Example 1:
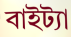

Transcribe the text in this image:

বাইট্যা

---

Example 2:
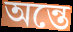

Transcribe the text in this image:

অন্তে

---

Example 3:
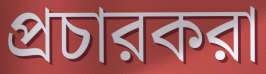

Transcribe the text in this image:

প্রচারকরা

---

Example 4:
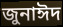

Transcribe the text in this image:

জুনাঈদ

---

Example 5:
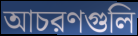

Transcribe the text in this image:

আচরণগুলি